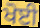
ਖੋਈ